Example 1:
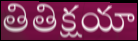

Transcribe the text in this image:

తితిక్షయా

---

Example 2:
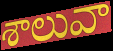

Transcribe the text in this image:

శాలువా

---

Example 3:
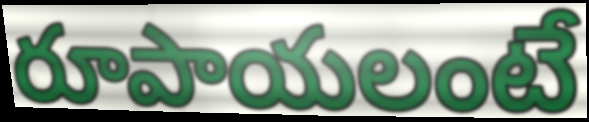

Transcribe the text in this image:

రూపాయలంటే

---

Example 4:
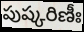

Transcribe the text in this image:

పుష్కరిణీః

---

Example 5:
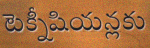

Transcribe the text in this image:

టెక్నీషియన్లకు